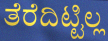
ತೆರೆದಿಟ್ಟಿಲ್ಲ